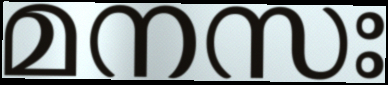
മനസഃ